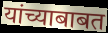
यांच्याबाबत